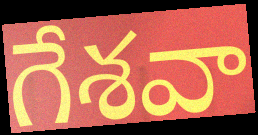
గేశవా